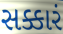
સક્કારં